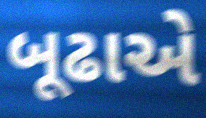
બૂઢાએ